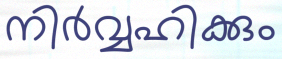
നിർവ്വഹിക്കും